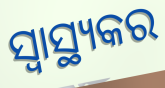
ସ୍ୱାସ୍ଥ୍ୟକର